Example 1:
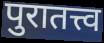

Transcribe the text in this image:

पुरातत्त्व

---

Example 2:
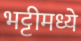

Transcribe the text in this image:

भट्टीमध्ये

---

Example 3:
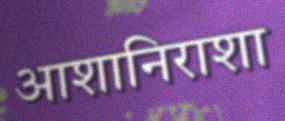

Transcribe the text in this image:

आशानिराशा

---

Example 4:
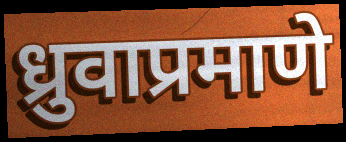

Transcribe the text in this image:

ध्रुवाप्रमाणे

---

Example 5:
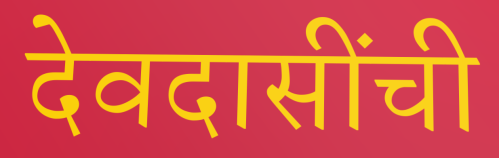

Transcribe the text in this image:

देवदासींची